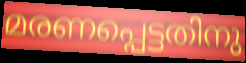
മരണപ്പെട്ടതിനു